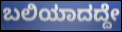
ಬಲಿಯಾದದ್ದೇ